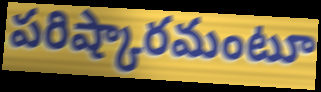
పరిష్కారమంటూ